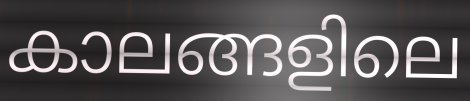
കാലങ്ങളിലെ